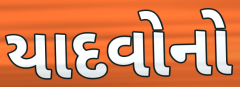
યાદવોનો